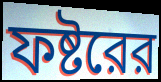
ফষ্টরের